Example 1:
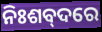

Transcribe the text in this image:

ନିଃଶବ୍‌ଦରେ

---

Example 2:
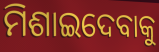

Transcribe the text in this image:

ମିଶାଇଦେବାକୁ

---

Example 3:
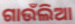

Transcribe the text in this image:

ଗାଉଁଲିଆ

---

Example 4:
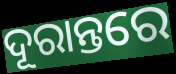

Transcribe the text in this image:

ଦୂରାନ୍ତରେ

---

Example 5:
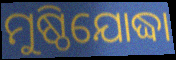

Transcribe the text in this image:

ମୁଷ୍ଠିଯୋଦ୍ଧା